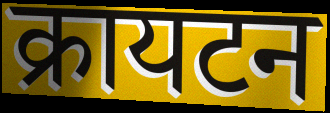
क्रायटन